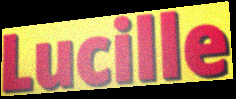
Lucille